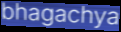
bhagachya